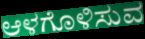
ಆಳಗೊಳಿಸುವ